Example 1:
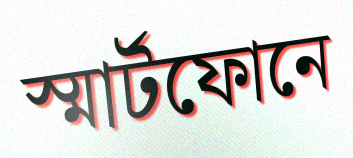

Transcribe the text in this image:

স্মার্টফোনে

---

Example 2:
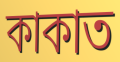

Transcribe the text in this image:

কাকাত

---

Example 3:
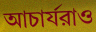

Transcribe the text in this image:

আচার্যরাও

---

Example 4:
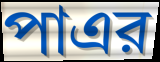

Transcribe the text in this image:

পাএর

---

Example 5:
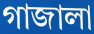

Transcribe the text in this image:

গাজালা